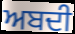
ਅਬਦੀ